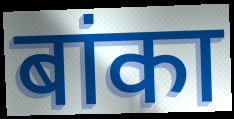
बांका